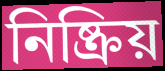
নিষ্ক্ৰিয়